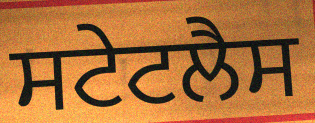
ਸਟੇਟਲੈਸ